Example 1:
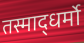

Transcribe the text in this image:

तस्माद्धर्मो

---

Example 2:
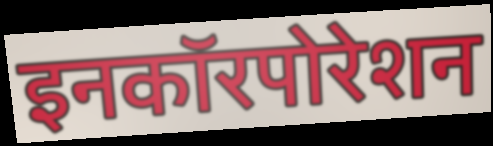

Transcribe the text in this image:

इनकॉरपोरेशन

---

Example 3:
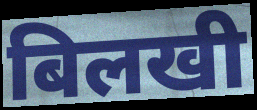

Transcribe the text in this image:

बिलखी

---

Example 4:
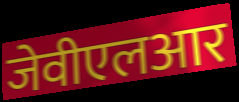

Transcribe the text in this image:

जेवीएलआर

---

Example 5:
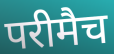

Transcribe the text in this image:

परीमैच